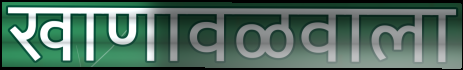
खाणावळवाला